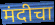
मंदीचा